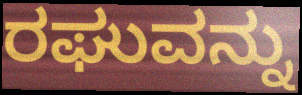
ರಘುವನ್ನು